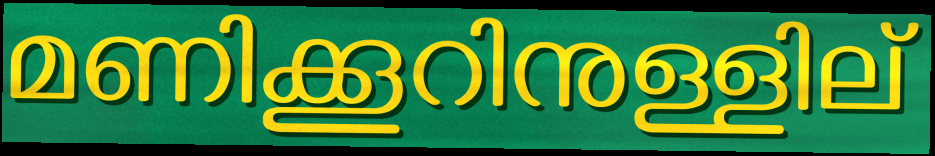
മണിക്കൂറിനുള്ളില്